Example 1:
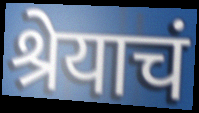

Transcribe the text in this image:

श्रेयाचं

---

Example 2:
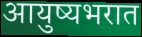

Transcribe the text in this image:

आयुष्यभरात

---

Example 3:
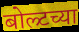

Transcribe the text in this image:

बोल्टच्या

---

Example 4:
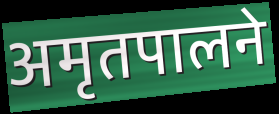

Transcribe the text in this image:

अमृतपालने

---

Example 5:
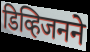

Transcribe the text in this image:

डिव्हिजनने